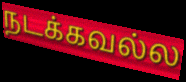
நடக்கவல்ல